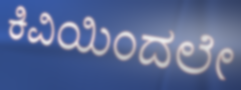
ಕಿವಿಯಿಂದಲೇ